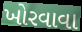
ખોરવાવા